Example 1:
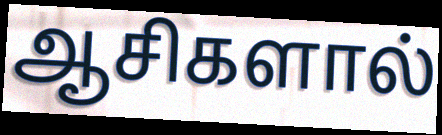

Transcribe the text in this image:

ஆசிகளால்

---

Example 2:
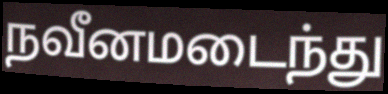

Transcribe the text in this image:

நவீனமடைந்து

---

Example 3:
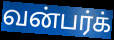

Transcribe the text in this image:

வன்பர்க்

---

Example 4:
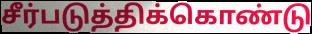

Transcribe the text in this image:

சீர்படுத்திக்கொண்டு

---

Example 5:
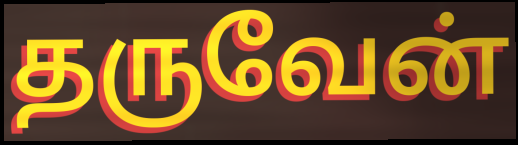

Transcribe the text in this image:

தருவேன்